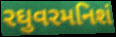
રઘુવરમનિશં